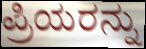
ಪ್ರಿಯರನ್ನು